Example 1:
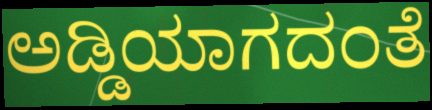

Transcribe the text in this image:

ಅಡ್ಡಿಯಾಗದಂತೆ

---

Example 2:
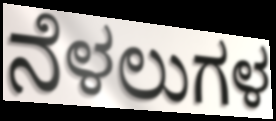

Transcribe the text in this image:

ನೆಳಲುಗಳ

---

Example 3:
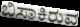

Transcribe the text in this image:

ಬಿಸಾಕಿರುವ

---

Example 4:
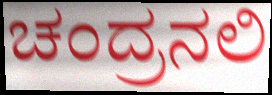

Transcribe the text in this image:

ಚಂದ್ರನಲಿ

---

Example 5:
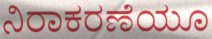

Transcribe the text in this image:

ನಿರಾಕರಣೆಯೂ